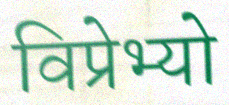
विप्रेभ्यो